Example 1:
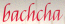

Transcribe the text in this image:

bachcha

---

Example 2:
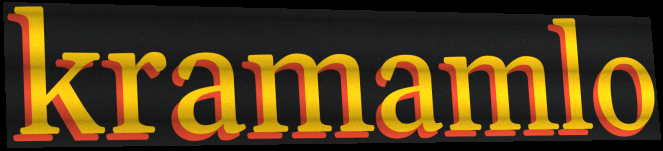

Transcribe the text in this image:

kramamlo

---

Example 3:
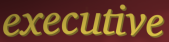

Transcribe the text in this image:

executive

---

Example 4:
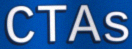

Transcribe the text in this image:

CTAs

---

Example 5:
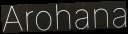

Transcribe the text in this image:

Arohana